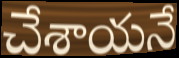
చేశాయనే